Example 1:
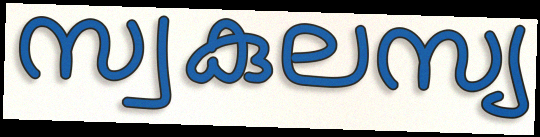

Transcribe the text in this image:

സ്വകുലസ്യ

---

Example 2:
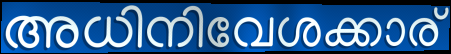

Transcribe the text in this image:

അധിനിവേശക്കാര്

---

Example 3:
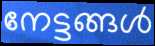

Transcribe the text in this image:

നേട്ടങ്ങൾ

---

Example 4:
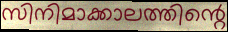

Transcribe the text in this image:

സിനിമാക്കാലത്തിന്റെ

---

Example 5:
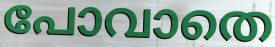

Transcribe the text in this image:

പോവാതെ